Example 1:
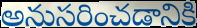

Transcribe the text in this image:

అనుసరించడానికి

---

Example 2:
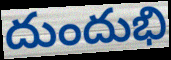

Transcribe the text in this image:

దుందుభి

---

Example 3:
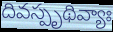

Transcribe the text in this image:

దివస్పృథివ్యాః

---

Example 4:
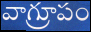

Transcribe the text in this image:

వాగ్రూపం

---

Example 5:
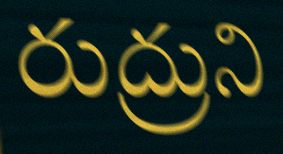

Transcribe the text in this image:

రుద్రుని